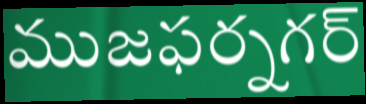
ముజఫర్నగర్